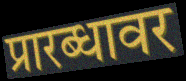
प्रारब्धावर